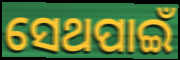
ସେଥପାଇଁ